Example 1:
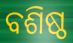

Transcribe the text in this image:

ବଶିଷ୍ଠ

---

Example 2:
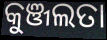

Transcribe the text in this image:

କୁଞ୍ଜଲତା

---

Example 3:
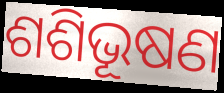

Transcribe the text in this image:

ଶଶିଭୂଷଣ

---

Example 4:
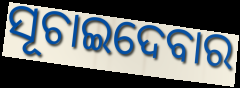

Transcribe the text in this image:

ସୂଚାଇଦେବାର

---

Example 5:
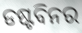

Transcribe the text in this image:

ଡଷ୍ଟବିନର